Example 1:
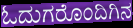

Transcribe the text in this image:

ಓದುಗರೊಂದಿಗಿನ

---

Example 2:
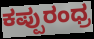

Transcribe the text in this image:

ಕಪ್ಪುರಂಧ್ರ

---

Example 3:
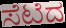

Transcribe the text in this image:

ಸೆಟೆದ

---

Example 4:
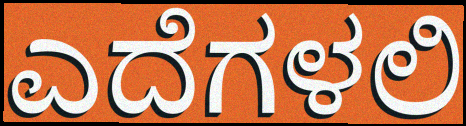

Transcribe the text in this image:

ಎದೆಗಳಲಿ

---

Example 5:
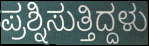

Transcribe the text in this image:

ಪ್ರಶ್ನಿಸುತ್ತಿದ್ದಳು